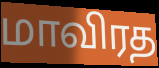
மாவிரத